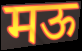
मऊ